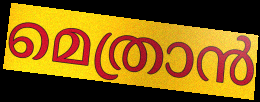
മെത്രാൻ